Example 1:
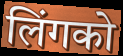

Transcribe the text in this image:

लिंगको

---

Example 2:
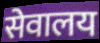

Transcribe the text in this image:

सेवालय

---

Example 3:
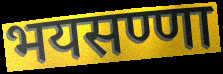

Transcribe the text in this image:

भयसण्णा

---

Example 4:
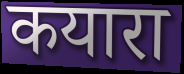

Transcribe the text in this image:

कयारा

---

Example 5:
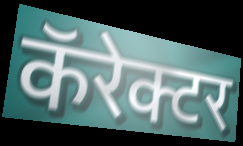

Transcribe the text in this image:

कॅरेक्टर